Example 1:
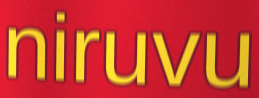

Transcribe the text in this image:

niruvu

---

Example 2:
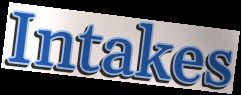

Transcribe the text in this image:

Intakes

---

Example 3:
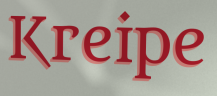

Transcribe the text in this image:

Kreipe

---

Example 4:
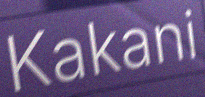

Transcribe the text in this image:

Kakani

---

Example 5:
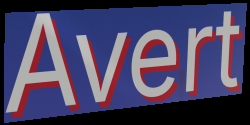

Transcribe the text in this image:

Avert